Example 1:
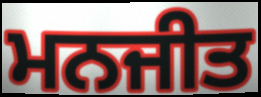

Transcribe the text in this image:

ਮਨਜੀਤ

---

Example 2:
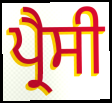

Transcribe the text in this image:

ਪ੍ਰੈਸੀ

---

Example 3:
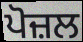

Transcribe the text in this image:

ਪੋਜ਼ਲ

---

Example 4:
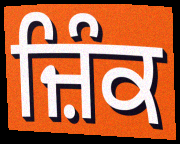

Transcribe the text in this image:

ਜ਼ਿੰਕ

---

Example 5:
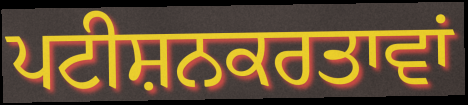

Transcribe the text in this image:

ਪਟੀਸ਼ਨਕਰਤਾਵਾਂ